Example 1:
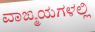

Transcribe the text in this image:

ವಾಙ್ಮಯಗಳಲ್ಲಿ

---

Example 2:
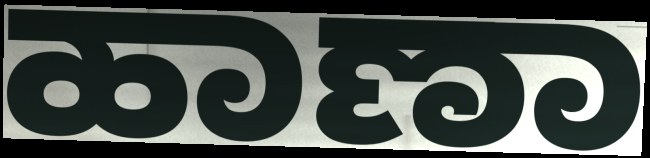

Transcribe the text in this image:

ಹಾಣಾ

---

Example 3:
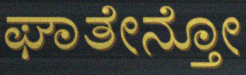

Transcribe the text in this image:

ಘಾತೇನ್ತೋ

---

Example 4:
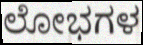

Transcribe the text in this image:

ಲೋಭಗಳ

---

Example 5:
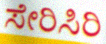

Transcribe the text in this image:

ಸೇರಿಸಿರಿ